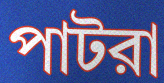
পাটরা